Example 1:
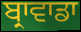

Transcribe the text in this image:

ਬ੍ਰਾਵਾਡਾ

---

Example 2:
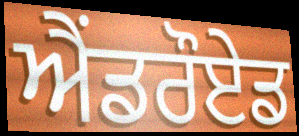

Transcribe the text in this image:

ਐਂਡਰੌਏਡ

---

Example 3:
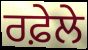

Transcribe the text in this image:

ਰਫ਼ੇਲੇ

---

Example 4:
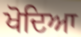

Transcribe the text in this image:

ਖੋਦਿਆ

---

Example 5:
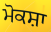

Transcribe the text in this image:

ਮੋਕਸ਼ਾ